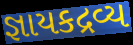
જ્ઞાયકદ્રવ્ય